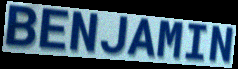
BENJAMIN